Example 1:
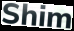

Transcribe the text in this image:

Shim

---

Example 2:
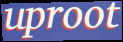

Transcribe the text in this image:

uproot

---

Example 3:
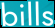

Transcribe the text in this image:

bills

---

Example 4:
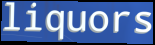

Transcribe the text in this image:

liquors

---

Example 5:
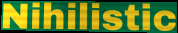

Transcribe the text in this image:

Nihilistic